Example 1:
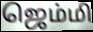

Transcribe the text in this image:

ஜெம்மி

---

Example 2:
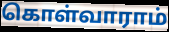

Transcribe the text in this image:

கொள்வாராம்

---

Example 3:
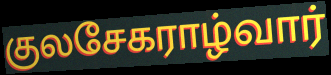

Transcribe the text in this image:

குலசேகராழ்வார்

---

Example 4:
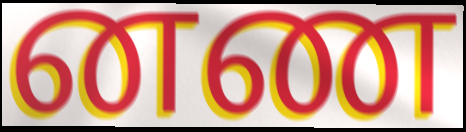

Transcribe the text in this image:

னண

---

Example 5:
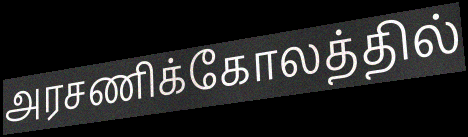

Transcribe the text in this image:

அரசணிக்கோலத்தில்